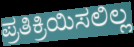
ಪ್ರತಿಕ್ರಿಯಿಸಲಿಲ್ಲ